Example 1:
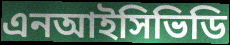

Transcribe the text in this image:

এনআইসিভিডি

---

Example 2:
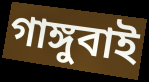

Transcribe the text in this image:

গাঙ্গুবাই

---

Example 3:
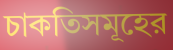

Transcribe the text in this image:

চাকতিসমূহের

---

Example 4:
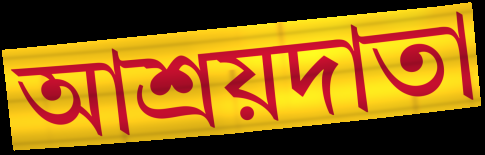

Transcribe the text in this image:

আশ্রয়দাতা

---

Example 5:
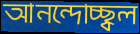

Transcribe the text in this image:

আনন্দোচ্ছ্বল